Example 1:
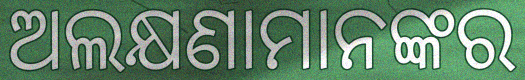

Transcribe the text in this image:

ଅଲକ୍ଷଣାମାନଙ୍କର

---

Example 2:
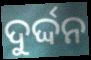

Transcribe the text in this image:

ଦୁର୍ଦ୍ଦନ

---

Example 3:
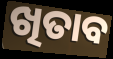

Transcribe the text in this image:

ଖିତାବ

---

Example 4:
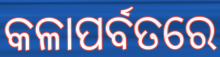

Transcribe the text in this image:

କଳାପର୍ବତରେ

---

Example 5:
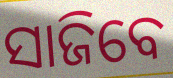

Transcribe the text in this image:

ସାଜିବେ